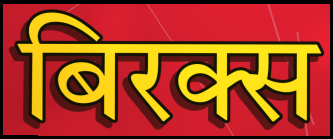
बिरक्स